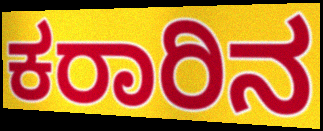
ಕರಾರಿನ